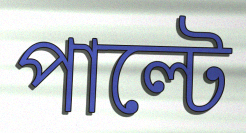
পাল্টে